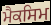
ਮੈਕਸਿਮ